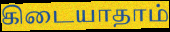
கிடையாதாம்